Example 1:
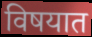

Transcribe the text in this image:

विषयात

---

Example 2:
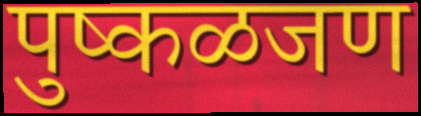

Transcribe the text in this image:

पुष्कळजण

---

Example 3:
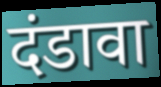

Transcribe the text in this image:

दंडावा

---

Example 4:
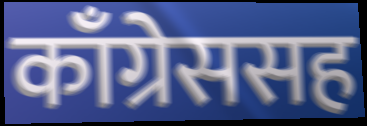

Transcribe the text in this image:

काँग्रेससह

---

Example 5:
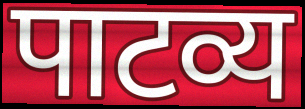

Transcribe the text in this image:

पाटव्य